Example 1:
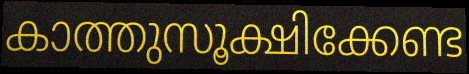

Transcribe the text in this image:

കാത്തുസൂക്ഷിക്കേണ്ട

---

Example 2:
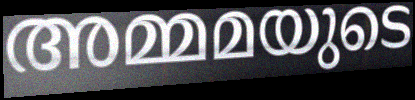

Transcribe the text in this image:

അമ്മമയുടെ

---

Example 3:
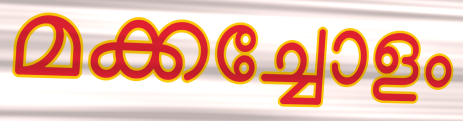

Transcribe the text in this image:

മക്കച്ചോളം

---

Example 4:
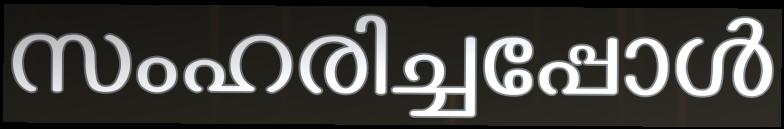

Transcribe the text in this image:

സംഹരിച്ചപ്പോൾ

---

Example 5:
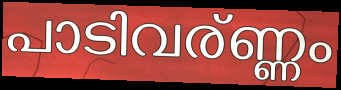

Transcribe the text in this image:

പാടിവര്ണ്ണം